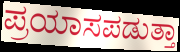
ಪ್ರಯಾಸಪಡುತ್ತಾ